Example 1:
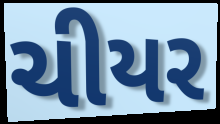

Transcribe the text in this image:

ચીયર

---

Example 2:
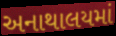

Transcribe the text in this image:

અનાથાલયમાં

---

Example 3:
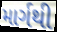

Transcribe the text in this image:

માર્ગથી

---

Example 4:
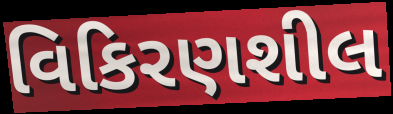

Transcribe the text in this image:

વિકિરણશીલ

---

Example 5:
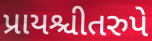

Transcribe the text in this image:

પ્રાયશ્ચીતરુપે